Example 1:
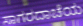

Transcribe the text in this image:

ಸಾಗರದಾಚೆಯ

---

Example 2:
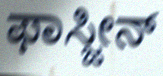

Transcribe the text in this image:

ಫಾಸ್ಜೀನ್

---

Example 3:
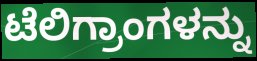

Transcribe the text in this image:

ಟೆಲಿಗ್ರಾಂಗಳನ್ನು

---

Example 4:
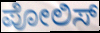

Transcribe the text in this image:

ಪೋಲಿಸ್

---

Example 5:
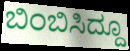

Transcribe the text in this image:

ಬಿಂಬಿಸಿದ್ದೂ